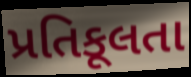
પ્રતિકૂલતા